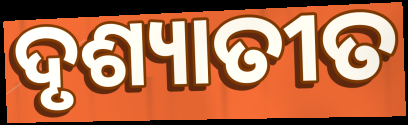
ଦୃଶ୍ୟାତୀତ